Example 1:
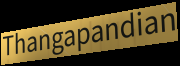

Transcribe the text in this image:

Thangapandian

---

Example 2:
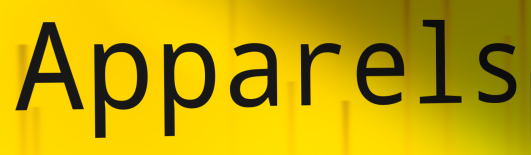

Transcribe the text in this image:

Apparels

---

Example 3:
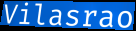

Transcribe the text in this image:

Vilasrao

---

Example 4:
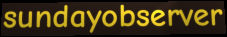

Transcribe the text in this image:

sundayobserver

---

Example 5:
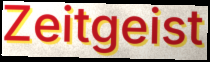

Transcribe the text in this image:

Zeitgeist